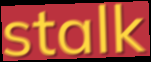
stalk